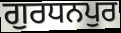
ਗੁਰਧਨਪੁਰ